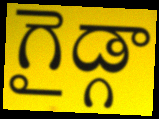
గైడ్గా